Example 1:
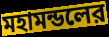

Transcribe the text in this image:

মহামন্ডলের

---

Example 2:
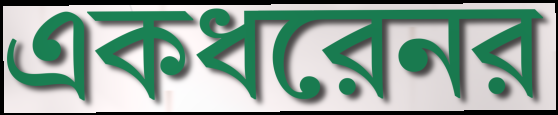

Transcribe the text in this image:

একধরেনর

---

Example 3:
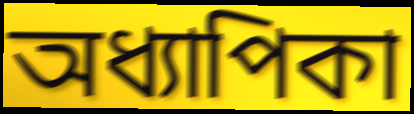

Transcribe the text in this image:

অধ্যাপিকা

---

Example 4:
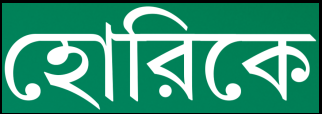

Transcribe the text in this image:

হোরিকে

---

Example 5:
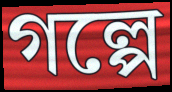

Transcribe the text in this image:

গল্পে